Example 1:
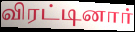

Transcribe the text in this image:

விரட்டினார்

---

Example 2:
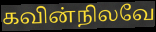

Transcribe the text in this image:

கவின்நிலவே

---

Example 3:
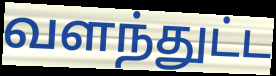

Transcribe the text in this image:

வளந்துட்ட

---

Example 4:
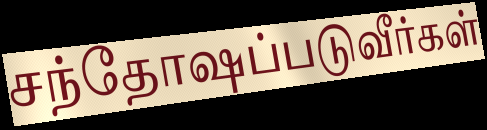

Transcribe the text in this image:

சந்தோஷப்படுவீர்கள்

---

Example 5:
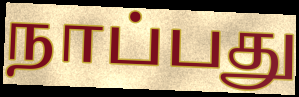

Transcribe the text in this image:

நாப்பது